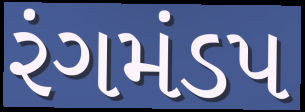
રંગમંડપ